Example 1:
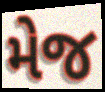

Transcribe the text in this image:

મેજ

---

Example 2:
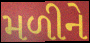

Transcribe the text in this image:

મળીને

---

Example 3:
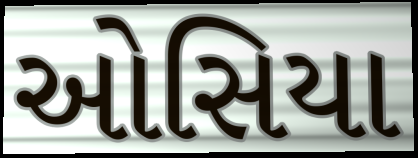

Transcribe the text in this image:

ઓસિયા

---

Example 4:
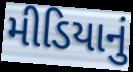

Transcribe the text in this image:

મીડિયાનું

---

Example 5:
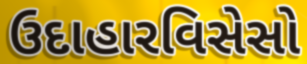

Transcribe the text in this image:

ઉદાહારવિસેસો